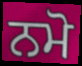
ਨਮੋ